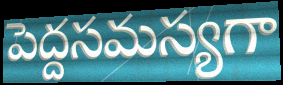
పెద్దసమస్యగా